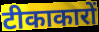
टीकाकारों